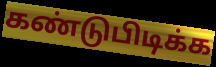
கண்டுபிடிக்க